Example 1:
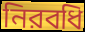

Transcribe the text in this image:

নিরবধি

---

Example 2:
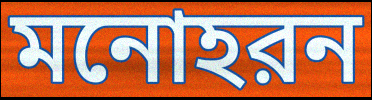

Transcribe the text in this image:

মনোহরন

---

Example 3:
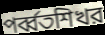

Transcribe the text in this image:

পর্ব্বতশিখর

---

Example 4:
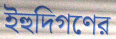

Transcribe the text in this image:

ইহুদিগণের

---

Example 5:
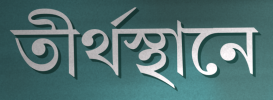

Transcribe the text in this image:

তীর্থস্থানে